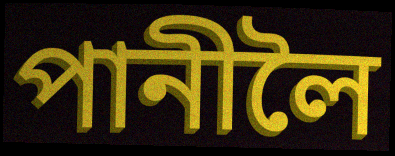
পানীলৈ